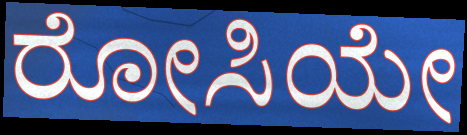
ರೋಸಿಯೇ